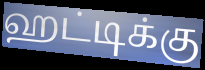
ஹட்டிக்கு